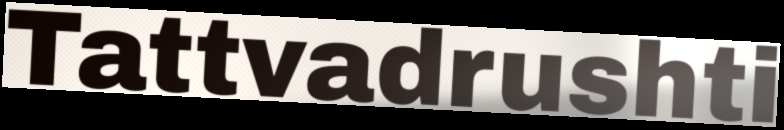
Tattvadrushti